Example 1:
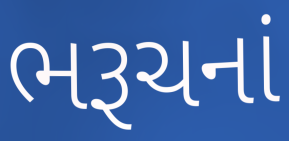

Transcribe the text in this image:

ભરૂચનાં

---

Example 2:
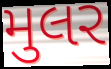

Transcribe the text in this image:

મુલર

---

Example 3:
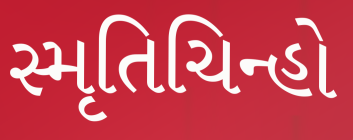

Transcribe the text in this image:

સ્મૃતિચિન્હો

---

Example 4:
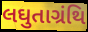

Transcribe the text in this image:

લઘુતાગ્રંથિ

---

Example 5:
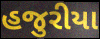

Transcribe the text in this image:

હજુરીયા